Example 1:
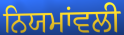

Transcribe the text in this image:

ਨਿਯਮਾਂਵਲੀ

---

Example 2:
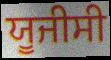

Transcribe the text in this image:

ਯੂਜੀਸੀ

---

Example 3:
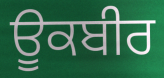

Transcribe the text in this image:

ਊਕਬੀਰ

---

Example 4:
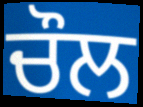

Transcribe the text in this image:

ਚੌਲ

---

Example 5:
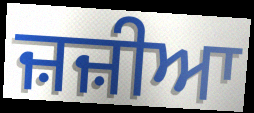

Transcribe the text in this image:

ਜ਼ਜ਼ੀਆ